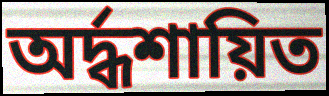
অর্দ্ধশায়িত